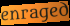
enraged